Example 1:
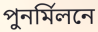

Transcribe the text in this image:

পুনর্মিলনে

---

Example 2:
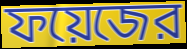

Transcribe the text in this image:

ফয়েজের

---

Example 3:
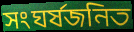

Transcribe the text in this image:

সংঘর্ষজনিত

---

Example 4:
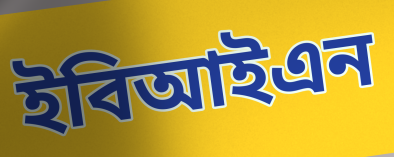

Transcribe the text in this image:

ইবিআইএন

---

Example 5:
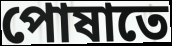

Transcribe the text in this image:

পোষাতে